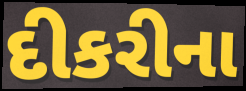
દીકરીના